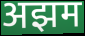
अझम